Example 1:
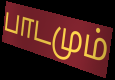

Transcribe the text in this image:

பாடமும்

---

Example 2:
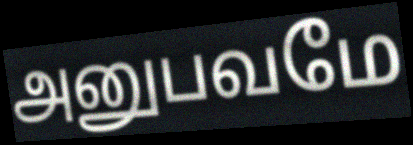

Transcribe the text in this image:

அனுபவமே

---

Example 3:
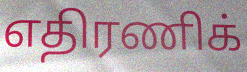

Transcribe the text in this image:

எதிரணிக்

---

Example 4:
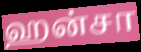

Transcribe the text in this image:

ஹன்சா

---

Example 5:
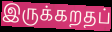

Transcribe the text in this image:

இருக்கறதப்